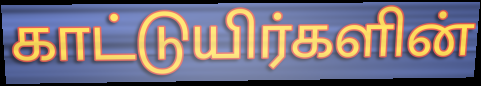
காட்டுயிர்களின்